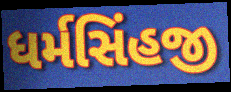
ધર્મસિંહજી